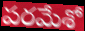
పరమేశో